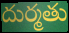
దుర్మతు